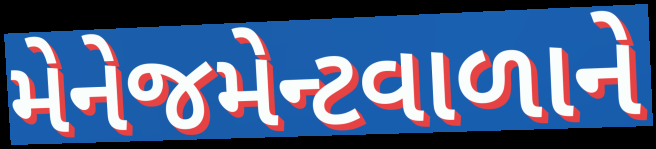
મેનેજમેન્ટવાળાને